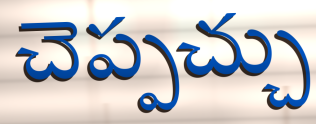
చెప్పచ్చు